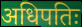
अधिपतिः